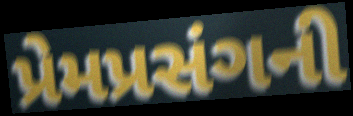
પ્રેમપ્રસંગની